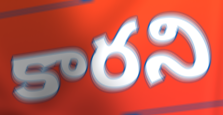
కారని